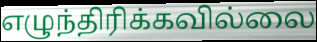
எழுந்திரிக்கவில்லை